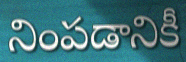
నింపడానికీ